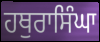
ਹਥੁਰਾਸਿੰਘਾ